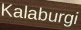
Kalaburgi